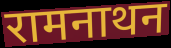
रामनाथन